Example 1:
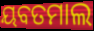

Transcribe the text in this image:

ୟବତମାଲ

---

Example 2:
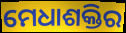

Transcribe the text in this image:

ମେଧାଶକ୍ତିର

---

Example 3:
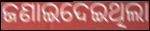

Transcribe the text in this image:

ଜଣାଇଦେଇଥିଲା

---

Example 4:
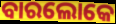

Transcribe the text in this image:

ବାରଲୋକେ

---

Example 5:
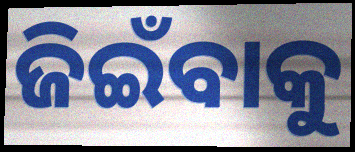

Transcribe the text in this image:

ଜିଇଁବାକୁ